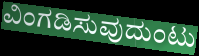
ವಿಂಗಡಿಸುವುದುಂಟು